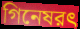
গিনেষরৎ